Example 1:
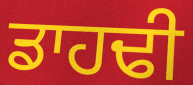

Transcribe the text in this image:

ਡਾਹਢੀ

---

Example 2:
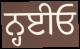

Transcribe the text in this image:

ਨ੍ਹਈਓ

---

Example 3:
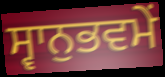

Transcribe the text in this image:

ਸ੍ਵਾਨੁਭਵਮੇਂ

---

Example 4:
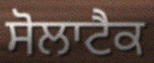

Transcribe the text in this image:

ਸੋਲਾਟੈਕ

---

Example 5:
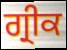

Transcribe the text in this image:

ਗ੍ਰੀਕ